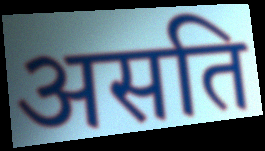
असति